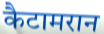
कैटामरान